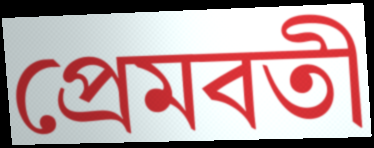
প্রেমবতী